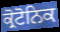
ਕ੍ਰੋਟੋਨਿਕ